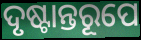
ଦୃଷ୍ଟାନ୍ତରୂପେ